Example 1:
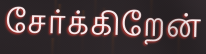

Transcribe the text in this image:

சேர்க்கிறேன்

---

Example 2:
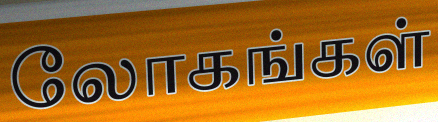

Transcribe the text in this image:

லோகங்கள்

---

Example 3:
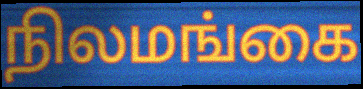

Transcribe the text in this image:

நிலமங்கை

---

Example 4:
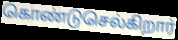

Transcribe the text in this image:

கொண்டுசெல்கிறார்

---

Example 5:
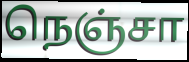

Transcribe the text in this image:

நெஞ்சா